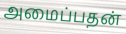
அமைப்பதன்